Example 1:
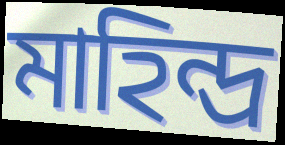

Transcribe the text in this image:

মাহিন্দ্র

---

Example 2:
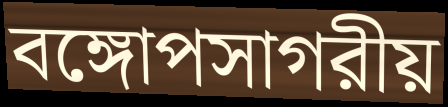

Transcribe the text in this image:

বঙ্গোপসাগরীয়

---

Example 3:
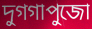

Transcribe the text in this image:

দুগগাপুজো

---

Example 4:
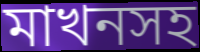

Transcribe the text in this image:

মাখনসহ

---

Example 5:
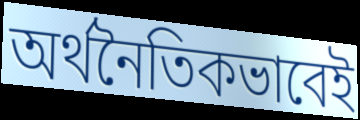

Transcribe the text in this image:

অর্থনৈতিকভাবেই